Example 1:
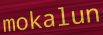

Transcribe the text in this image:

mokalun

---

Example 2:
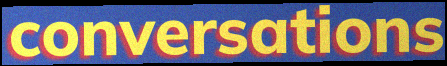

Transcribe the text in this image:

conversations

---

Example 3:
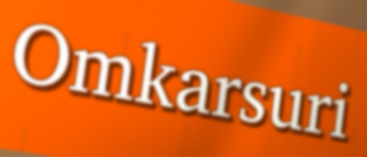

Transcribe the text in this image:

Omkarsuri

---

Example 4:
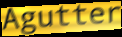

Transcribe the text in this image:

Agutter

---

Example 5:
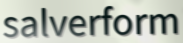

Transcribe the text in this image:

salverform